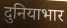
दुनियाभार